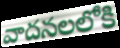
వాదనలలోకి